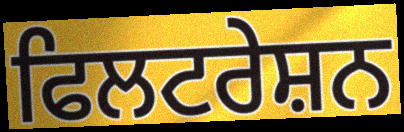
ਫਿਲਟਰੇਸ਼ਨ